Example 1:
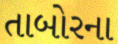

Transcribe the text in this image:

તાબોરના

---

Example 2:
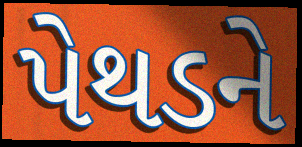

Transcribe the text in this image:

પેથડને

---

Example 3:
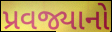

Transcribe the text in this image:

પ્રવજ્યાનો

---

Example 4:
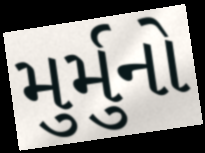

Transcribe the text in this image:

મુર્મુનો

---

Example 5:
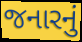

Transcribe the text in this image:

જનારનું